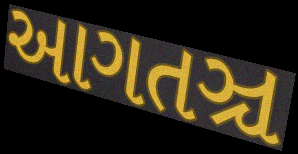
આગતઞ્ચ